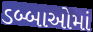
ડબ્બાઓમાં